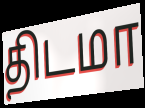
திடமா